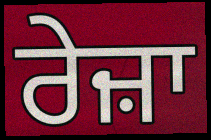
ਰੇਜ਼ਾ